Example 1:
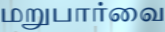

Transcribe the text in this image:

மறுபார்வை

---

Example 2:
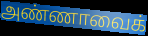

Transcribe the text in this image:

அண்ணாவைக்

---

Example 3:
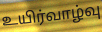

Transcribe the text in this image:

உயிர்வாழ்வு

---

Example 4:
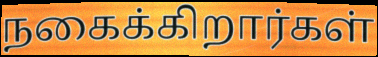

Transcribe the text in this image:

நகைக்கிறார்கள்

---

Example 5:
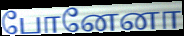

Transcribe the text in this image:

போனேனா